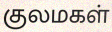
குலமகள்